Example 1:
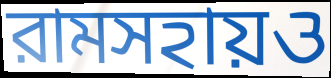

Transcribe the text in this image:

রামসহায়ও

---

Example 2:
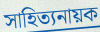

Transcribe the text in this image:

সাহিত্যনায়ক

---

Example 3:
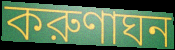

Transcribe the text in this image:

করুণাঘন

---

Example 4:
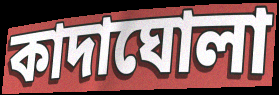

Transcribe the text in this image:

কাদাঘোলা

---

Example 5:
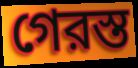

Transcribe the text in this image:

গেরস্ত